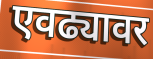
एवढ्यावर